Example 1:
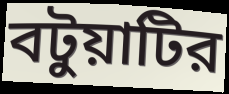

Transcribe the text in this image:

বটুয়াটির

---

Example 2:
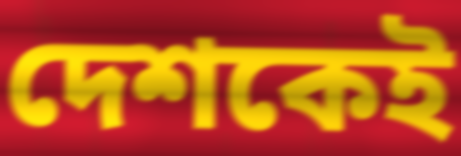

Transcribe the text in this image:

দেশকেই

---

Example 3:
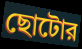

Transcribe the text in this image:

ছোটোর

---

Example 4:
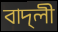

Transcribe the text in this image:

বাদ্‌লী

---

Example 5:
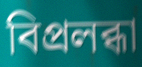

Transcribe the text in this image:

বিপ্রলব্ধা